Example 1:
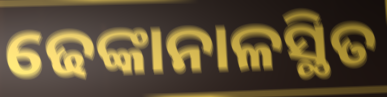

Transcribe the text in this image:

ଢେଙ୍କାନାଳସ୍ଥିତ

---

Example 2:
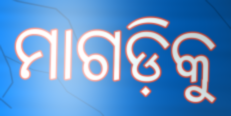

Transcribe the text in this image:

ମାଗଡ଼ିକୁ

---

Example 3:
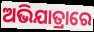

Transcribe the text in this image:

ଅଭିଯାତ୍ରାରେ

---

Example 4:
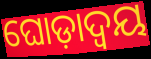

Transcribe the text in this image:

ଘୋଡ଼ାଦ୍ୱୟ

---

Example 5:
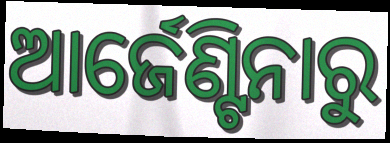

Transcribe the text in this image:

ଆର୍ଜେଣ୍ଟିନାରୁ